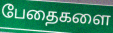
பேதைகளை